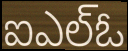
ఐఎల్ఓ